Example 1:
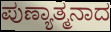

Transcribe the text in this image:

ಪುಣ್ಯಾತ್ಮನಾದ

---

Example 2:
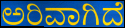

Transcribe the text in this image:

ಅರಿವಾಗಿದೆ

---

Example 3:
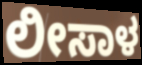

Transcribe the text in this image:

ಲೀಸಾಳ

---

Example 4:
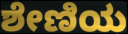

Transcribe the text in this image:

ಶೇಣಿಯ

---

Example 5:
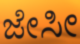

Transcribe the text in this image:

ಜೇಸೀ